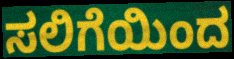
ಸಲಿಗೆಯಿಂದ